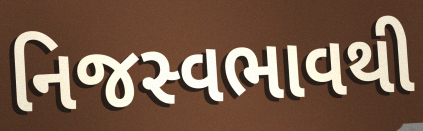
નિજસ્વભાવથી